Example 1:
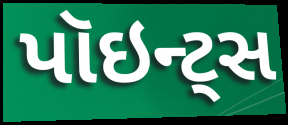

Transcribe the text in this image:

પૉઇન્ટ્સ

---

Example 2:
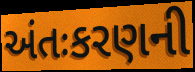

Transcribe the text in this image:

અંતઃકરણની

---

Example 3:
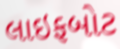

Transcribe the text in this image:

લાઇફબોટ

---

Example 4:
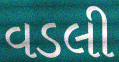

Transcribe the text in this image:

વડલી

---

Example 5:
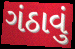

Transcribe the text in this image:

ગંઠાવું